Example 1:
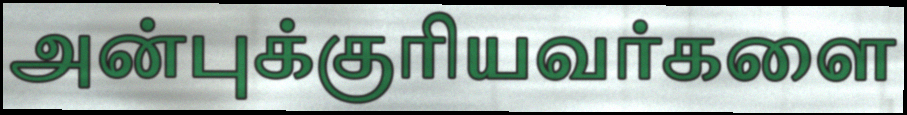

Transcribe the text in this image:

அன்புக்குரியவர்களை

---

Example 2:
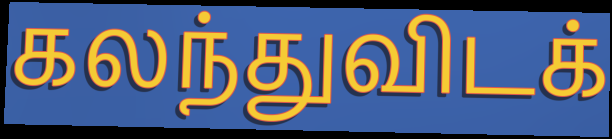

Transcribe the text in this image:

கலந்துவிடக்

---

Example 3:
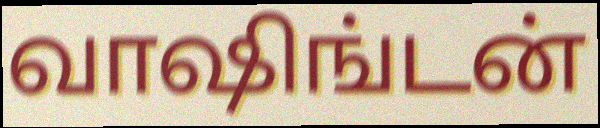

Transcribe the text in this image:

வாஷிங்டன்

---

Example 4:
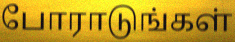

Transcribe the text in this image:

போராடுங்கள்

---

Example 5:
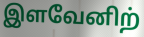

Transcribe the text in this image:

இளவேனிற்